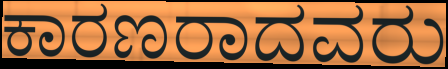
ಕಾರಣರಾದವರು